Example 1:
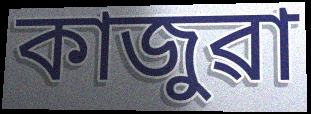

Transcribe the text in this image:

কাজুৱা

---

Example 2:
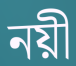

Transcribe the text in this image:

নয়ী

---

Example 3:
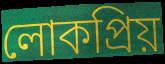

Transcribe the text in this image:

লোকপ্ৰিয়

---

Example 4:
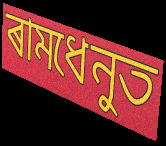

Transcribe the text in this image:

ৰামধেনুত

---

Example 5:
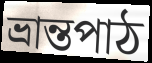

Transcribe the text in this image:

ভ্ৰান্তপাঠ